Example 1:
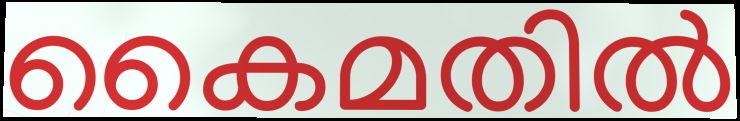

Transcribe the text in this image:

കൈമതിൽ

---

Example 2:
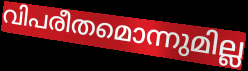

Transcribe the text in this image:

വിപരീതമൊന്നുമില്ല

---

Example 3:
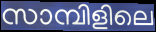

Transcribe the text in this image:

സാമ്പിളിലെ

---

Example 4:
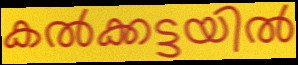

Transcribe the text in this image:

കൽക്കട്ടയിൽ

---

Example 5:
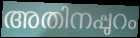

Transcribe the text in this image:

അതിനപ്പുറം